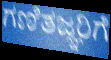
ಗಣಿತಜ್ಞರಿಗೆ